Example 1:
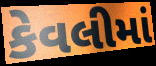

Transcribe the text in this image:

કેવલીમાં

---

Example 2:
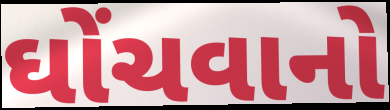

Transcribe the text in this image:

ઘોંચવાનો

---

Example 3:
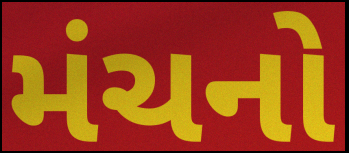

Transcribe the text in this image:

મંચનો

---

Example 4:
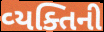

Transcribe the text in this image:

વ્‍યક્તિની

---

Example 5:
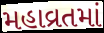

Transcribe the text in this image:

મહાવ્રતમાં